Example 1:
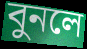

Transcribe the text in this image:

বুনলে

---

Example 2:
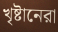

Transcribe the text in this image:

খৃষ্টানেরা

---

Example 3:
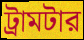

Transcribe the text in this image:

ট্রামটার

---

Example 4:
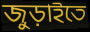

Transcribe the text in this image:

জুড়াইতে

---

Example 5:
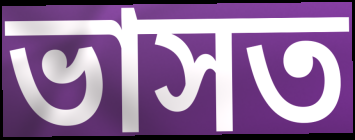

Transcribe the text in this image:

ভাসত